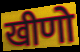
खीणो